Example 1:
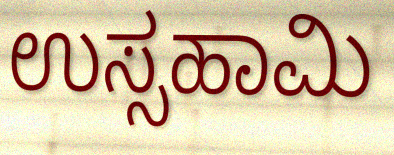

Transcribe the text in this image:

ಉಸ್ಸಹಾಮಿ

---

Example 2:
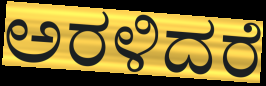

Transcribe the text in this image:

ಅರಳಿದರೆ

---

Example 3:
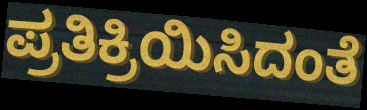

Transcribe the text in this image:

ಪ್ರತಿಕ್ರಿಯಿಸಿದಂತೆ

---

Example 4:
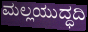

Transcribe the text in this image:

ಮಲ್ಲಯುದ್ಧದಿ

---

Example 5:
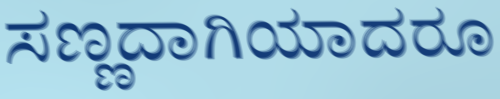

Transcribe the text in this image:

ಸಣ್ಣದಾಗಿಯಾದರೂ